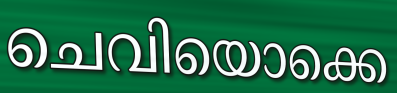
ചെവിയൊക്കെ